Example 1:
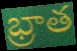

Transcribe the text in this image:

భ్రాత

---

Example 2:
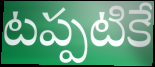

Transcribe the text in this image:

టప్పటికే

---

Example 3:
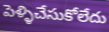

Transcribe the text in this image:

పెళ్ళిచేసుకోలేదు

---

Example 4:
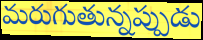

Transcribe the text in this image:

మరుగుతున్నప్పుడు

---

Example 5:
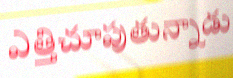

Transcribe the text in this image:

ఎత్తిచూపుతున్నాడు